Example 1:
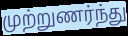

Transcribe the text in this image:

முற்றுணர்ந்து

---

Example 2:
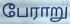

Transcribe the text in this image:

பேராறு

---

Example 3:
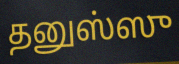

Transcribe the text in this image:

தனுஸ்ஸு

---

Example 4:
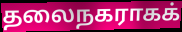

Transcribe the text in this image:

தலைநகராகக்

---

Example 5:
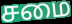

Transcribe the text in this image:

சமை